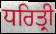
ਧਰਿਤ੍ਰੀ